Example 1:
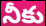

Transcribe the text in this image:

నీకు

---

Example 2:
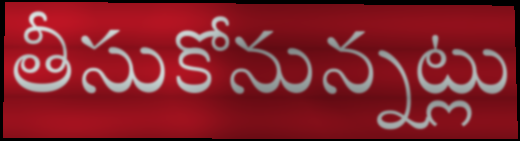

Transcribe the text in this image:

తీసుకోనున్నట్లు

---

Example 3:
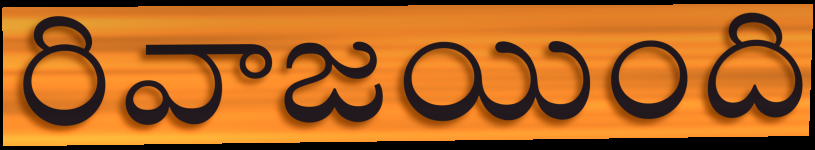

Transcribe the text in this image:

రివాజయింది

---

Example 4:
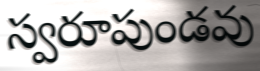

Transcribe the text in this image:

స్వరూపుండవు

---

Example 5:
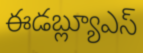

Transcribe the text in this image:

ఈడబ్ల్యూఎస్